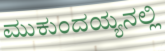
ಮುಕುಂದಯ್ಯನಲ್ಲಿ